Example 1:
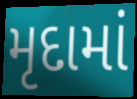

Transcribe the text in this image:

મૃદામાં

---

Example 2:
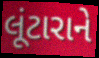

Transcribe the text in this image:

લૂંટારાને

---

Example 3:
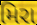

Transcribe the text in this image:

મિરા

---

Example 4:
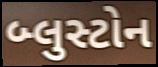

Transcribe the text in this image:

બ્લુસ્ટોન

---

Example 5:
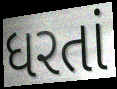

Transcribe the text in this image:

ધરતાં